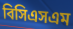
বিসিএসএম